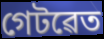
গেটৱেত